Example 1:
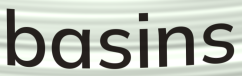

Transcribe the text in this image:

basins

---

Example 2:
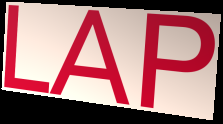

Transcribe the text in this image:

LAP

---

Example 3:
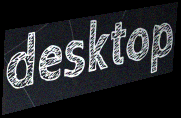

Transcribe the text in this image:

desktop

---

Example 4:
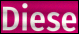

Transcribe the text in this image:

Diese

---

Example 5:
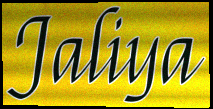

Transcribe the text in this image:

Jaliya